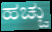
ಹಚ್ಚು